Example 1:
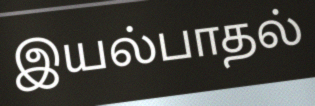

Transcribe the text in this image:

இயல்பாதல்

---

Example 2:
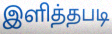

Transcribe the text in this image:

இளித்தபடி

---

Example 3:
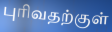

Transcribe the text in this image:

புரிவதற்குள்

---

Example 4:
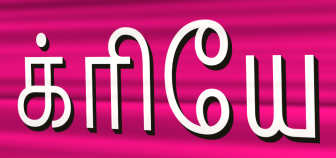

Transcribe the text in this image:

க்ரியே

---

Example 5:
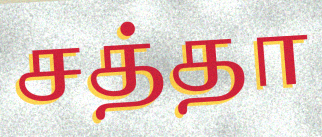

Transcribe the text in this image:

சத்தா